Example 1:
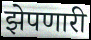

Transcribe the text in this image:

झेपणारी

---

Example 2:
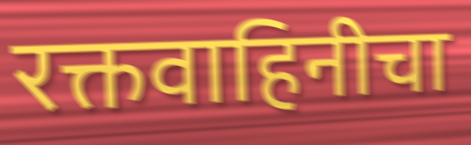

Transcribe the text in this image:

रक्तवाहिनीचा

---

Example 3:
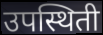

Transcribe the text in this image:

उपस्थिती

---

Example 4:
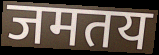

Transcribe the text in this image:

जमतय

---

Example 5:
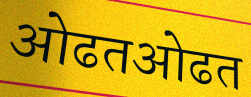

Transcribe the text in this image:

ओढतओढत